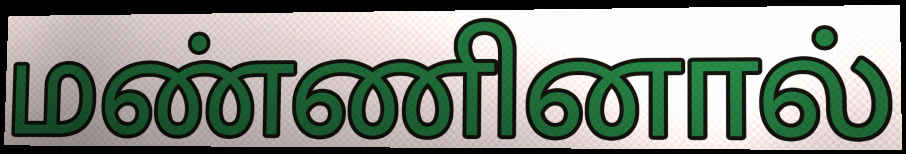
மண்ணினால்